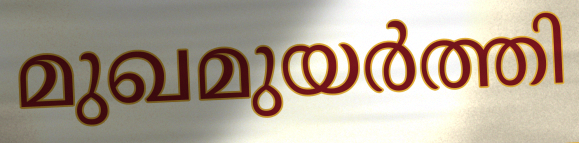
മുഖമുയർത്തി